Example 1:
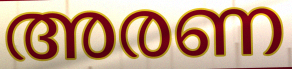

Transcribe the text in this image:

അരണ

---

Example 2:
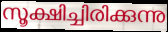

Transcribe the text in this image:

സൂക്ഷിച്ചിരിക്കുന്നു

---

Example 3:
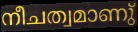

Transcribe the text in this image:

നീചത്വമാണു്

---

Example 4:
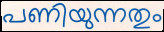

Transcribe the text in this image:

പണിയുന്നതും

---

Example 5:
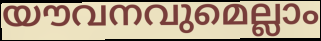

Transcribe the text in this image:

യൗവനവുമെല്ലാം